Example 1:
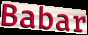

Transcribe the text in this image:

Babar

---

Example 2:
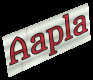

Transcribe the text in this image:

Aapla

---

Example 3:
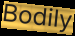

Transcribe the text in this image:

Bodily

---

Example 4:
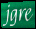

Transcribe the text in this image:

jgre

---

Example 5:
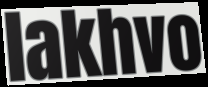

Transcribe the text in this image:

lakhvo